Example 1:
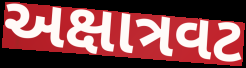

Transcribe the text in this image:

અક્ષાત્રવટ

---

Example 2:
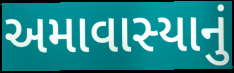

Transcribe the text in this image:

અમાવાસ્યાનું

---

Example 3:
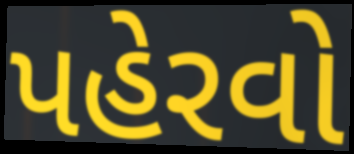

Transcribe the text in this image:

પહેરવો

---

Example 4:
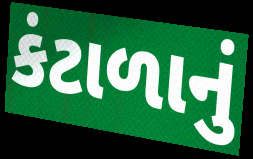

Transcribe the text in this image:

કંટાળાનું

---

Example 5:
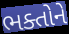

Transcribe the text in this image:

ભક્તોને